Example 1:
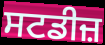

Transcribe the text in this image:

ਸਟਡੀਜ਼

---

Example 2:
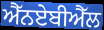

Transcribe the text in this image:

ਐੱਨਏਬੀਐੱਲ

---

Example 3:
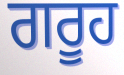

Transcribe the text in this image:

ਗਰੂਹ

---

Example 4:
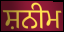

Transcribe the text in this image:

ਸ਼ਨੀਮ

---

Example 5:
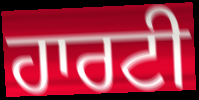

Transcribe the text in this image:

ਹਾਰਟੀ